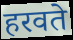
हरवते